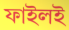
ফাইলই